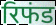
रिफंड